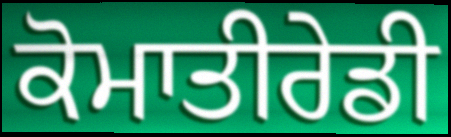
ਕੋਮਾਤੀਰੇਡੀ